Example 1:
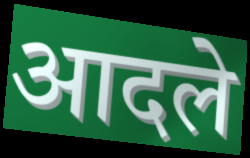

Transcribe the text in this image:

आदले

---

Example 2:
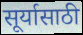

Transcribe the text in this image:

सूर्यासाठी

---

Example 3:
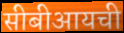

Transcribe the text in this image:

सीबीआयची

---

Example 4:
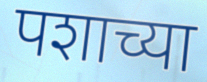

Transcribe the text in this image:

पशाच्या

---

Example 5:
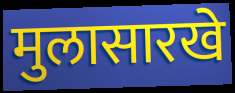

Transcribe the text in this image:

मुलासारखे